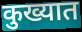
कुख्यात